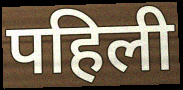
पहिली